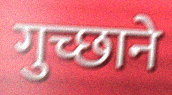
गुच्छाने